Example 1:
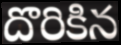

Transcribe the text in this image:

దొరికిన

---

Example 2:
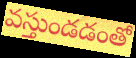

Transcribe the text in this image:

వస్తుండడంతో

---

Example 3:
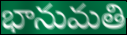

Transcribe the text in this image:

భానుమతి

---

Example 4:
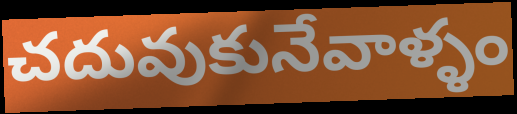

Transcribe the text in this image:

చదువుకునేవాళ్ళం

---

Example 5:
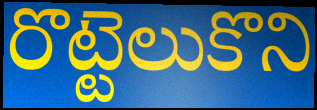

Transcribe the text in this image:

రొట్టెలుకొని